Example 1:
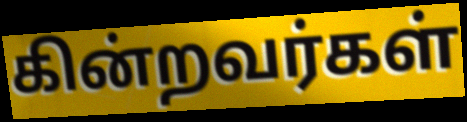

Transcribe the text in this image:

கின்றவர்கள்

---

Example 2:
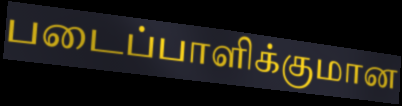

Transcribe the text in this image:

படைப்பாளிக்குமான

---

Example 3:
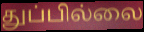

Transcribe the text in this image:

துப்பில்லை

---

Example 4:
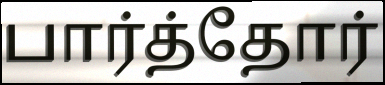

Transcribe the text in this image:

பார்த்தோர்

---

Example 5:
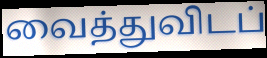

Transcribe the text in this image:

வைத்துவிடப்